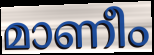
മാണീം